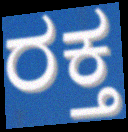
ರಕ್ತ